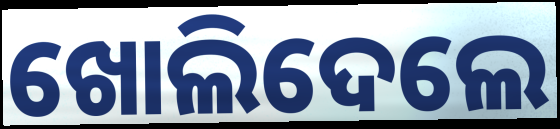
ଖୋଲିଦେଲେ